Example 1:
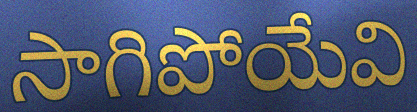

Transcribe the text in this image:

సాగిపోయేవి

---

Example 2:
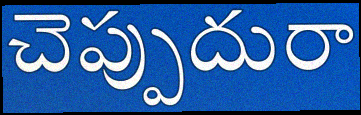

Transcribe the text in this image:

చెప్పుదురా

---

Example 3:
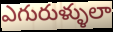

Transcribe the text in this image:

ఎగురుళ్ళులా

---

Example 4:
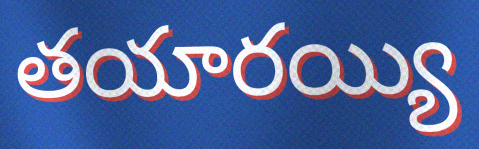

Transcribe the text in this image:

తయారయ్యి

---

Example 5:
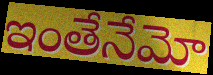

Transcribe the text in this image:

ఇంతేనేమో